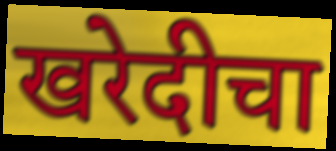
खरेदीचा